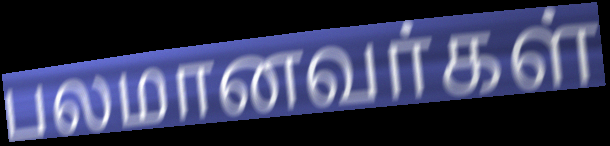
பலமானவர்கள்